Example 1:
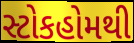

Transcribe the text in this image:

સ્ટોકહોમથી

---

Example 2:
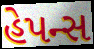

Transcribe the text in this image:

હેપન્સ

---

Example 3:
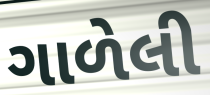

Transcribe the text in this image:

ગાળેલી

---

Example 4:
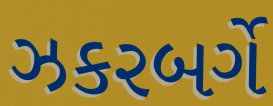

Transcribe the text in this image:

ઝકરબર્ગે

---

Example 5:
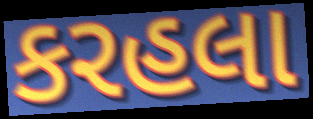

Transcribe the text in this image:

કરહલા